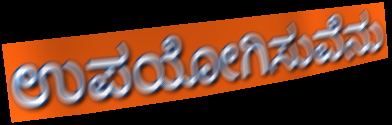
ಉಪಯೋಗಿಸುವೆನು